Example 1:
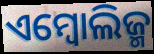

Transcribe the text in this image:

ଏମ୍ବୋଲିଜ୍ମ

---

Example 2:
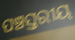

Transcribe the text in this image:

ପଞ୍ଚସ୍ତରୀୟ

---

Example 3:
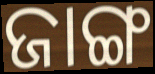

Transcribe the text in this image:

ଜାଙ୍ଗ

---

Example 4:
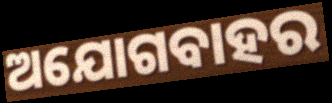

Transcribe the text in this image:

ଅଯୋଗବାହର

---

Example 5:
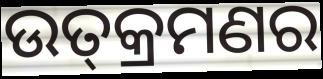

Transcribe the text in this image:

ଉତ୍‍କ୍ରମଣର